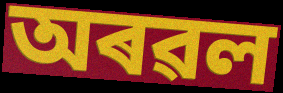
অৰৱল